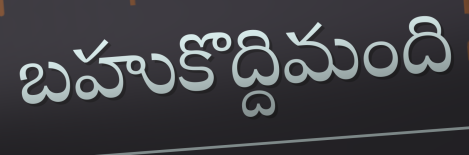
బహుకొద్దిమంది